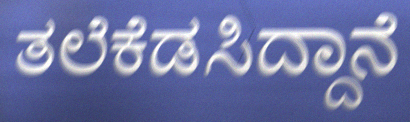
ತಲೆಕೆಡಸಿದ್ದಾನೆ